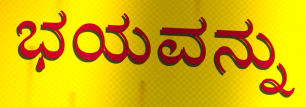
ಭಯವನ್ನು